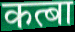
कत्बा